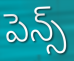
పెన్స్